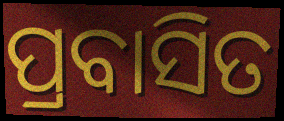
ପ୍ରବାସିତ